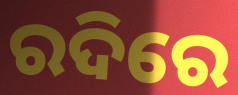
ରଦିରେ